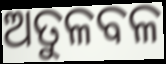
ଅତୁଳବଳ